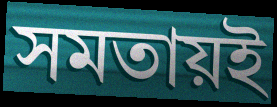
সমতায়ই